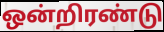
ஒன்றிரண்டு